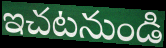
ఇచటనుండి